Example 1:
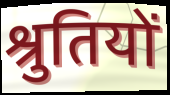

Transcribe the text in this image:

श्रुतियों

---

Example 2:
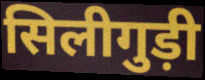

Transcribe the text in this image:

सिलीगुड़ी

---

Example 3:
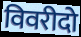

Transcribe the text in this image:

विवरीदो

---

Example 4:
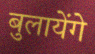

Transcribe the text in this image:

बुलायेंगे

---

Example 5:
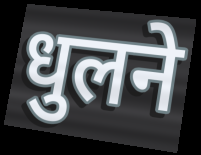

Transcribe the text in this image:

धुलने